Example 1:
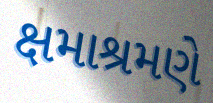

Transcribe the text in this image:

ક્ષમાશ્રમણે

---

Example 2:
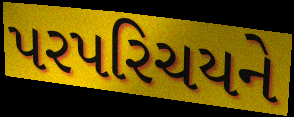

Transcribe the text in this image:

પરપરિચયને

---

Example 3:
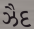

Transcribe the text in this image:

ઝૈદ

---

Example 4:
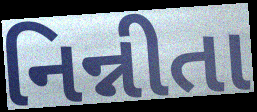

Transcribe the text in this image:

નિન્નીતા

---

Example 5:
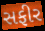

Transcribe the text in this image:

સફીર